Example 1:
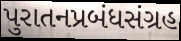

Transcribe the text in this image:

પુરાતનપ્રબંધસંગ્રહ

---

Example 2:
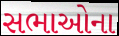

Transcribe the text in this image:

સભાઓના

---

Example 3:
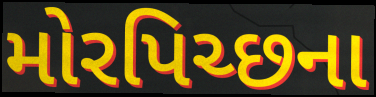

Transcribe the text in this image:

મોરપિચ્છના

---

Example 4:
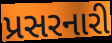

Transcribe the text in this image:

પ્રસરનારી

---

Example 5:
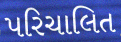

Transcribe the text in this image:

પરિચાલિત